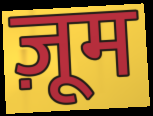
ज़ूम